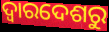
ଦ୍ଵାରଦେଶରୁ